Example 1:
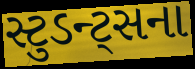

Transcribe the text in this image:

સ્ટુડન્ટ્સના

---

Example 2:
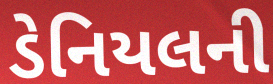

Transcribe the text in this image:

ડેનિયલની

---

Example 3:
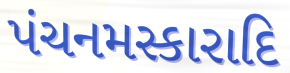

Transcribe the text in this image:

પંચનમસ્કારાદિ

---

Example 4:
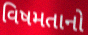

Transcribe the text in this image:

વિષમતાનો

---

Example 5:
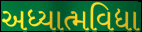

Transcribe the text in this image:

અધ્યાત્મવિદ્યા